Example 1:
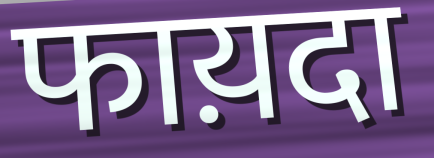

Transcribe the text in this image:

फाय़दा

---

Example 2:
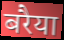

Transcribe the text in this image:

बरैया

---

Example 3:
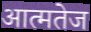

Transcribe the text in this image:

आत्मतेज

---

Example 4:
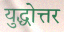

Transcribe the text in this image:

युद्धोत्तर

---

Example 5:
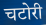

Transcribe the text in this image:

चटोरी